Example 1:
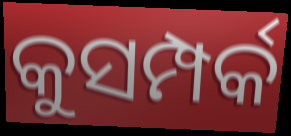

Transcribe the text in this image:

କୁସମ୍ପର୍କ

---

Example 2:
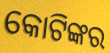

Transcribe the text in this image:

କୋଟିଙ୍କର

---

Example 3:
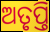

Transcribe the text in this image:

ଅତୃପ୍ତି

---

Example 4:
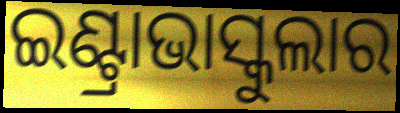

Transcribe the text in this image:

ଇଣ୍ଟ୍ରାଭାସ୍କୁଲାର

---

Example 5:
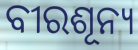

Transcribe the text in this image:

ବୀରଶୂନ୍ୟ